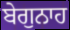
ਬੇਗੁਨਾਹ